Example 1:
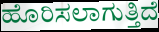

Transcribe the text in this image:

ಹೊರಿಸಲಾಗುತ್ತಿದೆ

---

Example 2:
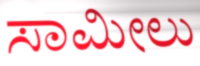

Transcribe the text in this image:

ಸಾಮೀಲು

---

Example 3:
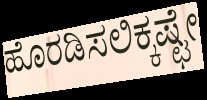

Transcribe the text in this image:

ಹೊರಡಿಸಲಿಕ್ಕಷ್ಟೇ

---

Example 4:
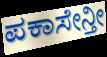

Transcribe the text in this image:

ಪಕಾಸೇನ್ತೀ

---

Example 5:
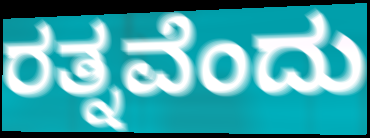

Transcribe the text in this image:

ರತ್ನವೆಂದು